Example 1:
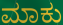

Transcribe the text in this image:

ಮಾಕು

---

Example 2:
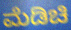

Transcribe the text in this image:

ಮೆಡಿಚಿ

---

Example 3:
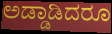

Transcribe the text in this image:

ಅಡ್ಡಾಡಿದರೂ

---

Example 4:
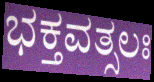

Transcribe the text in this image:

ಭಕ್ತವತ್ಸಲಃ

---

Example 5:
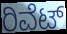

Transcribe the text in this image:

ರಿವೆಟ್